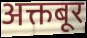
अक्तबूर